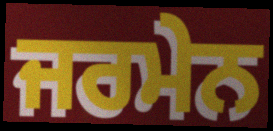
ਜਰਮੇਨ